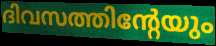
ദിവസത്തിന്റേയും